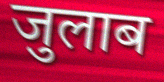
जुलाब